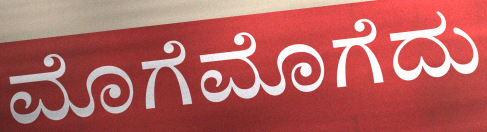
ಮೊಗೆಮೊಗೆದು